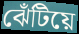
ঝেঁটিয়ে